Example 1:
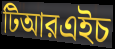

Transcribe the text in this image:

টিআরএইচ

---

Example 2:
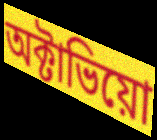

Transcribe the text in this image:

অক্টাভিয়ো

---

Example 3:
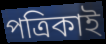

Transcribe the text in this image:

পত্রিকাই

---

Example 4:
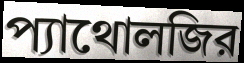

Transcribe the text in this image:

প্যাথোলজির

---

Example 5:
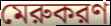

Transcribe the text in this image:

মেরুকরণ